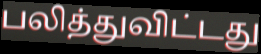
பலித்துவிட்டது